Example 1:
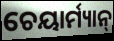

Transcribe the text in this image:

ଚେୟାର୍ମ୍ୟାନ୍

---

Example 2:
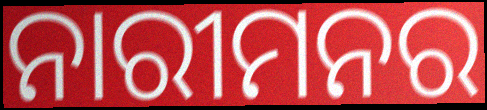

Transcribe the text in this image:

ନାରୀମନର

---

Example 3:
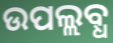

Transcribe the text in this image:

ଉପଲ୍ଲବ୍ଧ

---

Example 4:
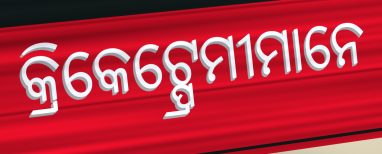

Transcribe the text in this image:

କ୍ରିକେଟ୍ପ୍ରେମୀମାନେ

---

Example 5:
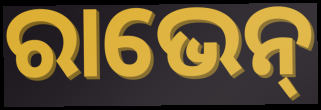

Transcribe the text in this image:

ରାଭେନ୍